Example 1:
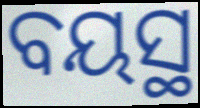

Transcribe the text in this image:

ବୟସ୍ଥ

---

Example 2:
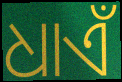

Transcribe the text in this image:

ଧାଏଁ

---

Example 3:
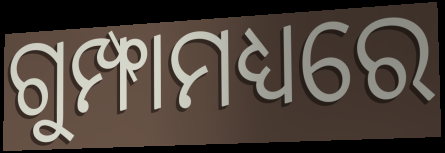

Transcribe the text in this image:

ଗୁମ୍ଫାମଧ୍ୟରେ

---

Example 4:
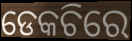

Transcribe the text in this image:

ଡେକଚିରେ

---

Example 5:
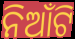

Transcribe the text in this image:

ନିଆଁଟି